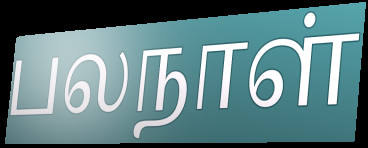
பலநாள்